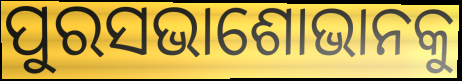
ପୁରସଭାଶୋଭାନକୁ